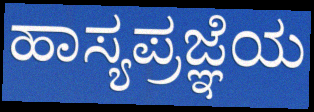
ಹಾಸ್ಯಪ್ರಜ್ಞೆಯ